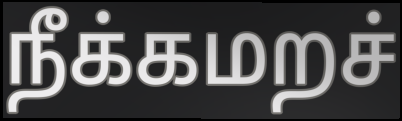
நீக்கமறச்